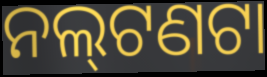
ନଲ୍‍ଟଣଟା